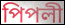
পিপলী